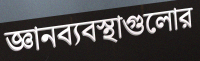
জ্ঞানব্যবস্থাগুলোর